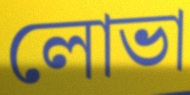
লোভা